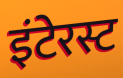
इंटेरस्ट